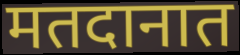
मतदानात